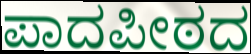
ಪಾದಪೀಠದ